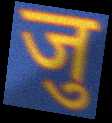
जु